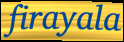
firayala